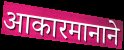
आकारमानाने